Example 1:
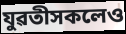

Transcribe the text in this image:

যুৱতীসকলেও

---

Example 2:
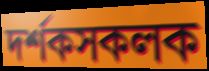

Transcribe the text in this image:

দৰ্শকসকলক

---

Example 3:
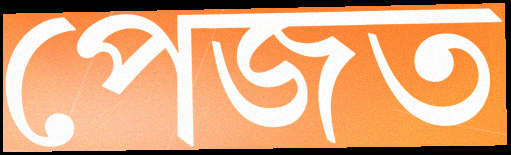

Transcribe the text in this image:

পেজত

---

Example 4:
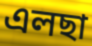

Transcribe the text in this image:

এলছা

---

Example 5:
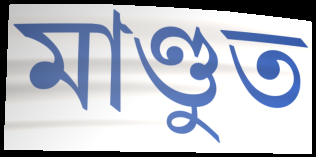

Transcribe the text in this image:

মাণ্ডুত